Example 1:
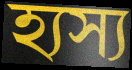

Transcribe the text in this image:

হ্যস্য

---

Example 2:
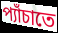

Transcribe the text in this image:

প্যাঁচাতে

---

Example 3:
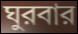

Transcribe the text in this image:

ঘুরবার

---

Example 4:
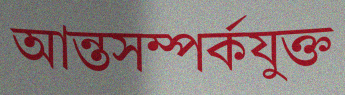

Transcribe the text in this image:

আন্তসম্পর্কযুক্ত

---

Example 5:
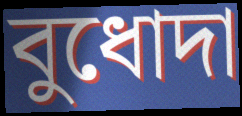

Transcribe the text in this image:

বুধোদা